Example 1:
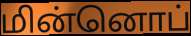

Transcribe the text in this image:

மின்னொப்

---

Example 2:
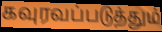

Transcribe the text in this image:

கவுரவப்படுத்தும்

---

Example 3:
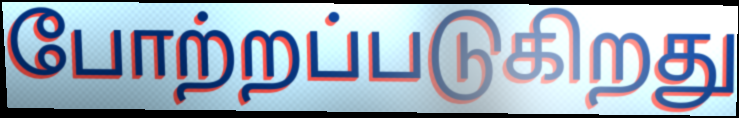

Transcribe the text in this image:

போற்றப்படுகிறது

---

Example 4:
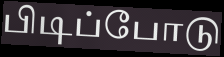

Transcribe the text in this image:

பிடிப்போடு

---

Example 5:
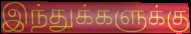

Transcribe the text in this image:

இந்துக்களுக்கு